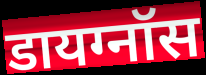
डायग्नॉस